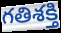
గతిశక్తి